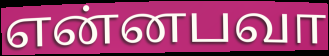
என்னபவா